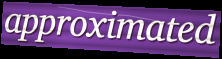
approximated